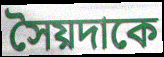
সৈয়দাকে